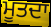
ਮੂਤਦਾ